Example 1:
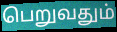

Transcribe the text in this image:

பெறுவதும்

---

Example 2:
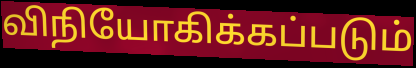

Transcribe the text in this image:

விநியோகிக்கப்படும்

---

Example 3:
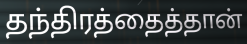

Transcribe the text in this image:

தந்திரத்தைத்தான்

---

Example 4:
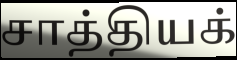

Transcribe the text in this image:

சாத்தியக்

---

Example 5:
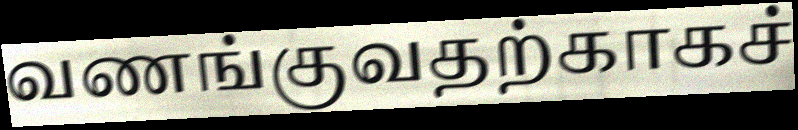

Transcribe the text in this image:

வணங்குவதற்காகச்